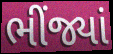
ભીંજ્યાં